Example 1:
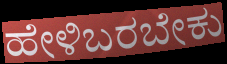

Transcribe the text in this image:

ಹೇಳಿಬರಬೇಕು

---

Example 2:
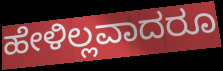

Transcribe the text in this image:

ಹೇಳಿಲ್ಲವಾದರೂ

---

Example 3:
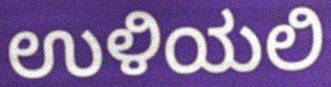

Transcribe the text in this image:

ಉಳಿಯಲಿ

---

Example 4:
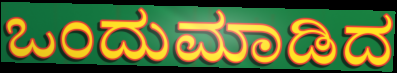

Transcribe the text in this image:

ಒಂದುಮಾಡಿದ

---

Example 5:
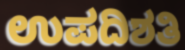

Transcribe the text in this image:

ಉಪದಿಶತಿ